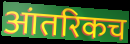
आंतरिकच